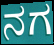
ನಗ